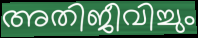
അതിജീവിച്ചും